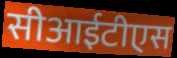
सीआईटीएस